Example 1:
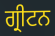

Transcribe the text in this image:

ਗ੍ਰੀਟਨ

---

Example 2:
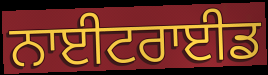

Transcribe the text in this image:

ਨਾਈਟਰਾਈਡ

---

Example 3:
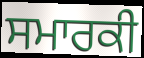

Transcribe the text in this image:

ਸਮਾਰਕੀ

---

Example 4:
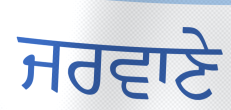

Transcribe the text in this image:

ਜਰਵਾਣੇ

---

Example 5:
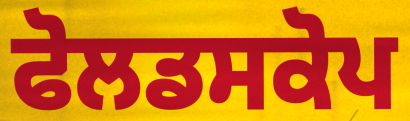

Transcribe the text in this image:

ਫੋਲਡਸਕੋਪ